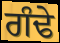
ਗੰਢੇ